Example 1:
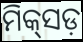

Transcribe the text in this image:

ମିକ୍‌ସଡ଼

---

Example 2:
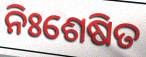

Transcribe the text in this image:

ନିଃଶେଷିତ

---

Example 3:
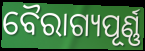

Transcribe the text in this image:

ବୈରାଗ୍ୟପୂର୍ଣ୍ଣ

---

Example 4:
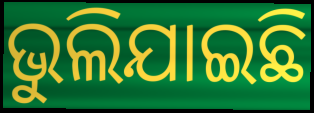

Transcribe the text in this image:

ଭୁଲିଯାଇଛି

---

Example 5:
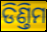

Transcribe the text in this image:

ଡିଣ୍ତିମ